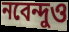
নবেন্দুও